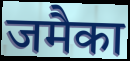
जमैका